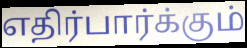
எதிர்பார்க்கும்